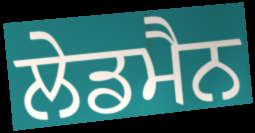
ਲੇਡਮੈਨ